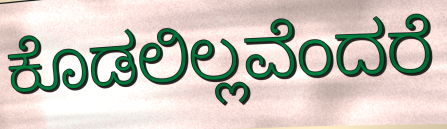
ಕೊಡಲಿಲ್ಲವೆಂದರೆ